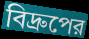
বিদ্রুপের